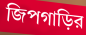
জিপগাড়ির